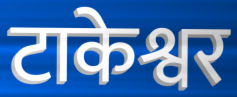
टाकेश्वर